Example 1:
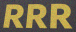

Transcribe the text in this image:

RRR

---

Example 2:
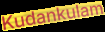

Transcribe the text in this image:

Kudankulam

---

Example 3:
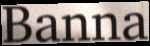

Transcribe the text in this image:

Banna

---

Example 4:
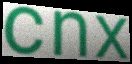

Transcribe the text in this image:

cnx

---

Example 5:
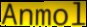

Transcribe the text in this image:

Anmol